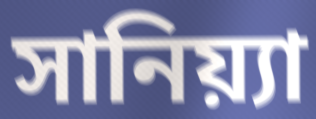
সানিয়্যা